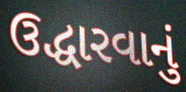
ઉદ્ધારવાનું